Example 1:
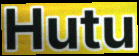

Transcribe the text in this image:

Hutu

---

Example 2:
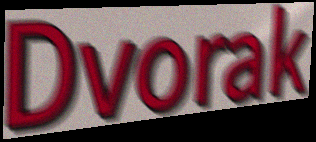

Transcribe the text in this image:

Dvorak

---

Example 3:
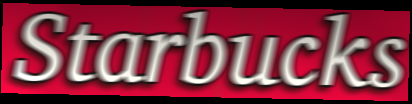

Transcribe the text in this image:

Starbucks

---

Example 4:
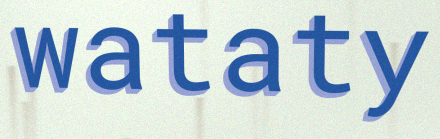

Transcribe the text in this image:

wataty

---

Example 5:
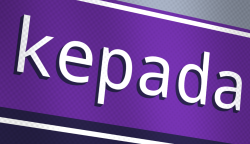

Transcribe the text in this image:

kepada